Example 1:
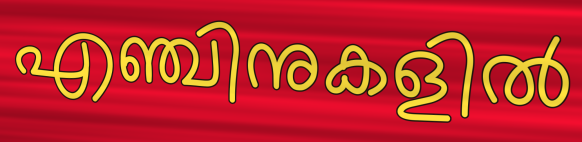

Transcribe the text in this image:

എഞ്ചിനുകളിൽ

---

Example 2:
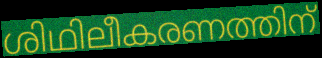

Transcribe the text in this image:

ശിഥിലീകരണത്തിന്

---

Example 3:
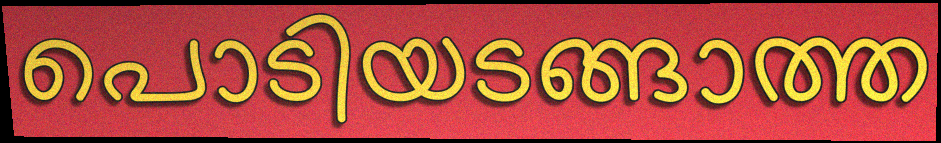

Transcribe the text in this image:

പൊടിയടങ്ങാത്ത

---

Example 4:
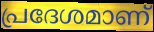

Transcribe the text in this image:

പ്രദേശമാണ്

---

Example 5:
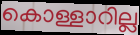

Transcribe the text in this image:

കൊള്ളാറില്ല